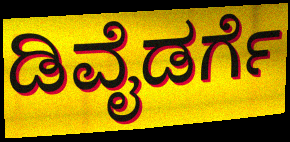
ಡಿವೈಡರ್ಗೆ